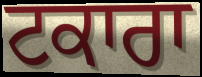
ਟਕਾਰਾ